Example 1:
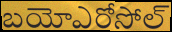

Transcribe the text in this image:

బయోఎరోసోల్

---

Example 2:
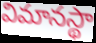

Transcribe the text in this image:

విమానస్థా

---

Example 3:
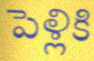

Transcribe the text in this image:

పెళ్లికి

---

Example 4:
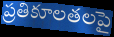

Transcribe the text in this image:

ప్రతికూలతలపై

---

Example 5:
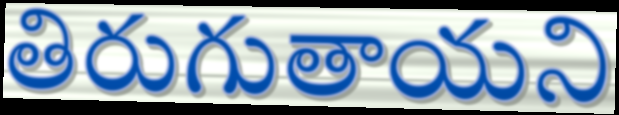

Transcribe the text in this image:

తిరుగుతాయని